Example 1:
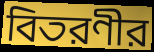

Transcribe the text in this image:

বিতরণীর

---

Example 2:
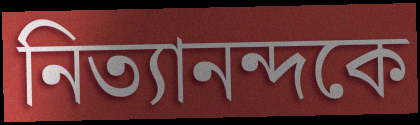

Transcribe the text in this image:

নিত্যানন্দকে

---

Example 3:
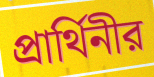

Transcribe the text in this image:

প্রার্থিনীর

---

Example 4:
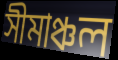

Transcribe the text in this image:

সীমাঞ্চল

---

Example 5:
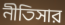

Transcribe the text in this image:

নীতিসার